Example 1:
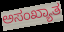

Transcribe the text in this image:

ಅಸಂಖ್ಯಾತ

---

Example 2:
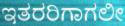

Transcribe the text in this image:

ಇತರರಿಗಾಗಲೀ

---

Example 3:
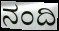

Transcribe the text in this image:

ನಂದಿ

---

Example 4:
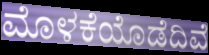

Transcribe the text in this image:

ಮೊಳಕೆಯೊಡೆದಿವೆ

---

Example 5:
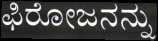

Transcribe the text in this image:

ಫಿರೋಜನನ್ನು